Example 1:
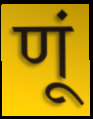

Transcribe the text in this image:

णूं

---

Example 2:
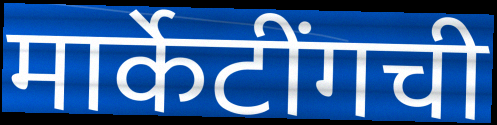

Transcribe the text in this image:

मार्केटींगची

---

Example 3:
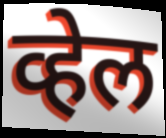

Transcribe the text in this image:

व्हेल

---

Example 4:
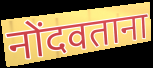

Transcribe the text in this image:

नोंदवताना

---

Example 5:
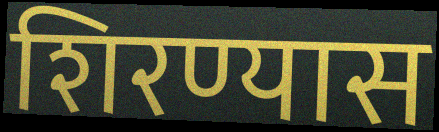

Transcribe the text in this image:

शिरण्यास